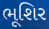
ભૂશિર